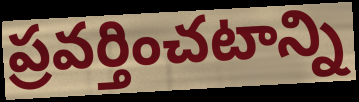
ప్రవర్తించటాన్ని